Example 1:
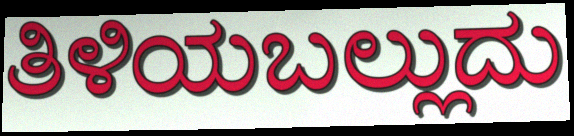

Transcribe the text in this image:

ತಿಳಿಯಬಲ್ಲುದು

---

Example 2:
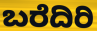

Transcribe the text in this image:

ಬರೆದಿರಿ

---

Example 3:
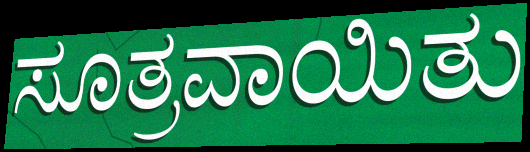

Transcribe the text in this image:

ಸೂತ್ರವಾಯಿತು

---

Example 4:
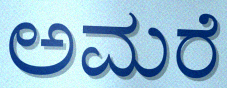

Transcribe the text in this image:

ಅಮರೆ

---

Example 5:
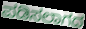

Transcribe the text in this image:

ಪಡಿಸಲಾಗದ